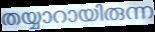
തയ്യാറായിരുന്ന